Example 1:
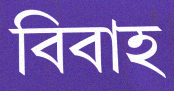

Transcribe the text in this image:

বিবাহ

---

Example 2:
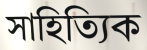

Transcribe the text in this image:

সাহিত্যিক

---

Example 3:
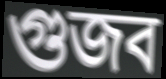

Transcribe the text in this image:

গুজব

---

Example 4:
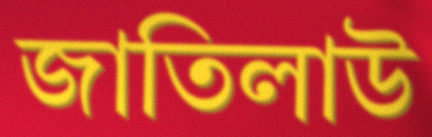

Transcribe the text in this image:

জাতিলাউ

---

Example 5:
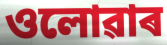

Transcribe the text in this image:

ওলোৱাৰ